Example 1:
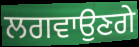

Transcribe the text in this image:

ਲਗਵਾਉਣਗੇ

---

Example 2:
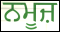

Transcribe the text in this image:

ਨਮੂਜ਼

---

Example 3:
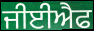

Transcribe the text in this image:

ਜੀਈਐਫ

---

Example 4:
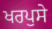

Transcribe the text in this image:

ਖਰਪੁਸੇ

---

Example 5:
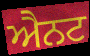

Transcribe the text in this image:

ਐਨਟ